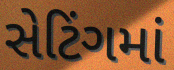
સેટિંગમાં